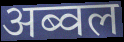
अब्वल